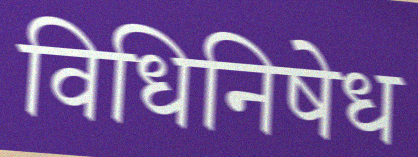
विधिनिषेध